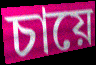
চায়ে